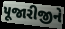
પૂજારીજીને